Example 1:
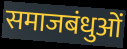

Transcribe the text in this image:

समाजबंधुओं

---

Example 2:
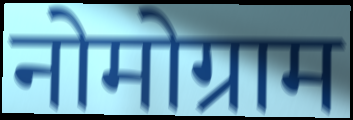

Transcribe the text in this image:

नोमोग्राम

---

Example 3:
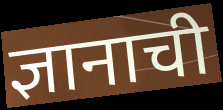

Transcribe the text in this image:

ज्ञानाची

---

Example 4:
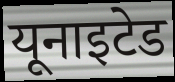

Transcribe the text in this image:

यूनाइटेड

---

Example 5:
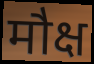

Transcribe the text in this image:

मौक्ष